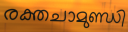
രക്തചാമുണ്ഡി